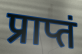
प्राप्तं